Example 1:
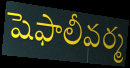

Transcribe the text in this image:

షెఫాలీవర్మ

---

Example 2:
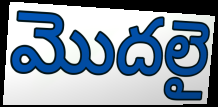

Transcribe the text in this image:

మొదలై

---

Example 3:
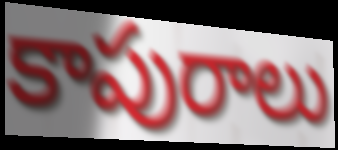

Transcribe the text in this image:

కాపురాలు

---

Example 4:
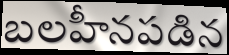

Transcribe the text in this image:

బలహీనపడిన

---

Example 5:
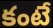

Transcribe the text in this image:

కంటే